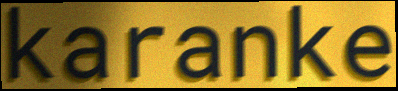
karanke